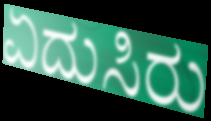
ಏದುಸಿರು